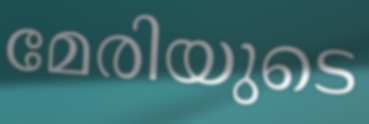
മേരിയുടെ